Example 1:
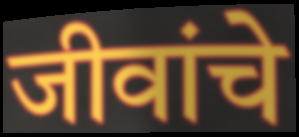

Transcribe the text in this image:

जीवांचे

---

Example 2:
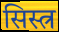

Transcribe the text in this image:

सिस्त्र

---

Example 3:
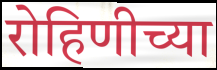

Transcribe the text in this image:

रोहिणीच्या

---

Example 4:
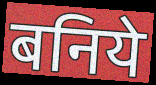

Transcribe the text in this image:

बनिये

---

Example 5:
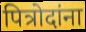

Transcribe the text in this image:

पित्रोदांना